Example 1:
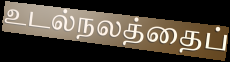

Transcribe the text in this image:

உடல்நலத்தைப்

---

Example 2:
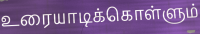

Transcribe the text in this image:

உரையாடிக்கொள்ளும்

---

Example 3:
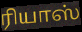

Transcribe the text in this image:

ரியாஸ்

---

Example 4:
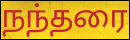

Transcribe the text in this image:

நந்தரை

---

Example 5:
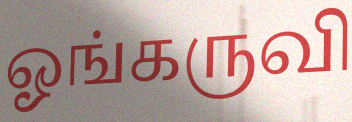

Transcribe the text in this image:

ஓங்கருவி